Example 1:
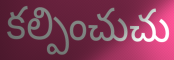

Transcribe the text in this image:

కల్పించుచు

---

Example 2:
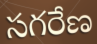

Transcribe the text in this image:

సగరేణ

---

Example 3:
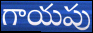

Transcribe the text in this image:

గాయపు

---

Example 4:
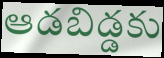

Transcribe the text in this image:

ఆడబిడ్డకు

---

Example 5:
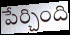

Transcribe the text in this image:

పేర్చింది